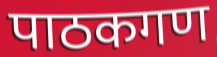
पाठकगण